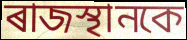
ৰাজস্থানকে